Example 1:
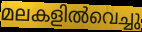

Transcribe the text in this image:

മലകളിൽവെച്ചു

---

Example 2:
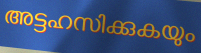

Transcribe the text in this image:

അട്ടഹസിക്കുകയും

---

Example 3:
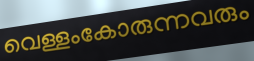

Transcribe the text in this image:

വെള്ളംകോരുന്നവരും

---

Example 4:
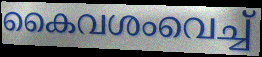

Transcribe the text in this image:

കൈവശംവെച്ച്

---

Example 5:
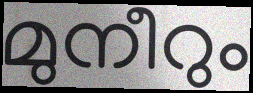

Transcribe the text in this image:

മുനീറും